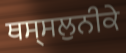
ਥਸ੍ਸਲੁਨੀਕੇ